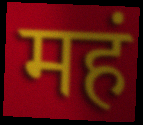
महं